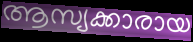
ആസ്യക്കാരായ